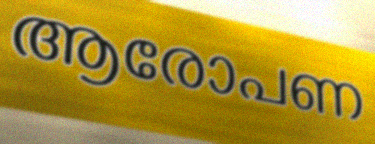
ആരോപണ